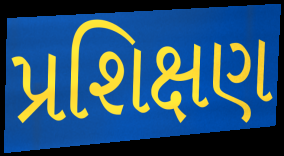
પ્રશિક્ષણ